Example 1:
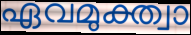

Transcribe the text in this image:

ഏവമുക്ത്വാ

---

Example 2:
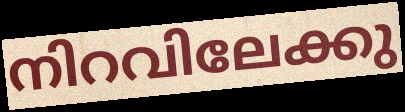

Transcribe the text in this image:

നിറവിലേക്കു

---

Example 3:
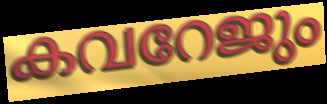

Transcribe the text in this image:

കവറേജും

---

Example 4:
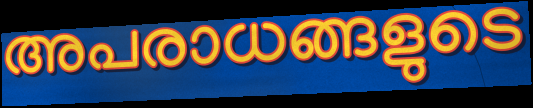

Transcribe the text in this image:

അപരാധങ്ങളുടെ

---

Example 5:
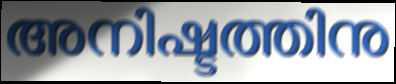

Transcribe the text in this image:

അനിഷ്ടത്തിനു